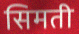
सिमती